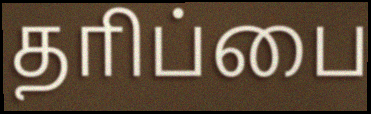
தரிப்பை